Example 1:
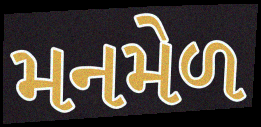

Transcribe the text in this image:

મનમેળ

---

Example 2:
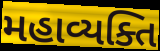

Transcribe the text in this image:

મહાવ્યક્તિ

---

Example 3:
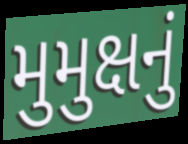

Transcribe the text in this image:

મુમુક્ષનું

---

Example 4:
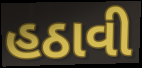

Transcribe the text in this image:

હઠાવી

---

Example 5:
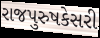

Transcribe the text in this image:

રાજપુરુષકેસરી